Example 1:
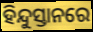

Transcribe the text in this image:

ହିନ୍ଦୁସ୍ତାନରେ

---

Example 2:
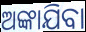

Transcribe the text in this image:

ଅଙ୍କାଯିବା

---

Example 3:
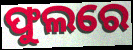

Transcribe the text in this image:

ଫୁଲରେ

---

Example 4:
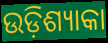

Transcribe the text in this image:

ଉଡ଼ିଶ୍ୟାକା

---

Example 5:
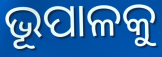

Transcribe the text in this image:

ଭୂପାଳକୁ